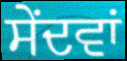
ਸੇਂਦਵਾਂ